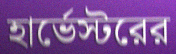
হার্ভেস্টরের